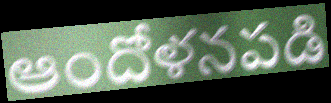
ఆందోళనపడి